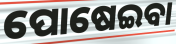
ପୋଷେଇବା